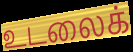
உடலைக்